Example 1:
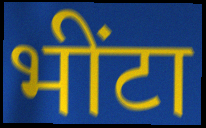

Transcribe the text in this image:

भींटा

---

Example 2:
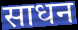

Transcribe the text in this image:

साधन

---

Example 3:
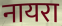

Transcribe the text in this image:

नायरा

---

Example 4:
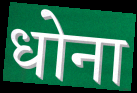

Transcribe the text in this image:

धोना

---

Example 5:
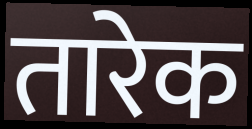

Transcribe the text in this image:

तारेक